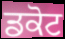
ਡਕੋਟ